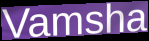
Vamsha